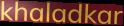
khaladkar